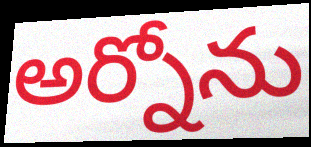
అర్నోను